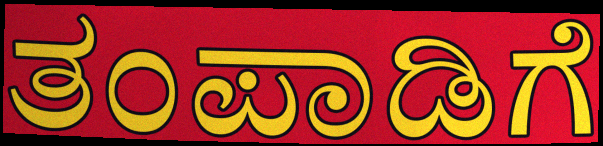
ತಂಪಾಡಿಗೆ